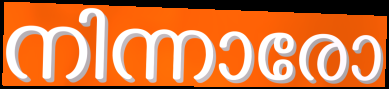
നിന്നാരോ